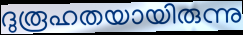
ദുരൂഹതയായിരുന്നു